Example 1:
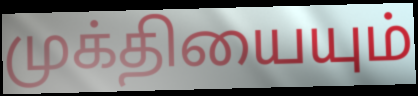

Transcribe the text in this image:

முக்தியையும்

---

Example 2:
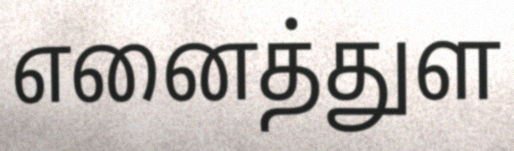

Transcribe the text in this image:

எனைத்துள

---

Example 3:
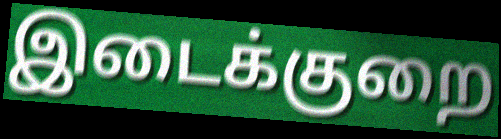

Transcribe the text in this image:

இடைக்குறை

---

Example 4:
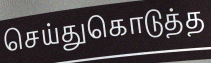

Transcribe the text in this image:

செய்துகொடுத்த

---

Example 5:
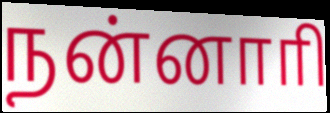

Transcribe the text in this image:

நன்னாரி